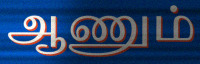
ஆணும்